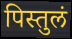
पिस्तुलं